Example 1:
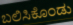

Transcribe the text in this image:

ಬಲಿಸಿಕೊಂಡು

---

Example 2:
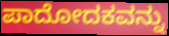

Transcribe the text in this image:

ಪಾದೋದಕವನ್ನು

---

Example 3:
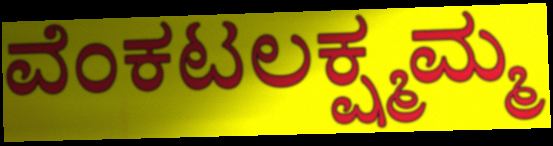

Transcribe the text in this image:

ವೆಂಕಟಲಕ್ಷ್ಮಮ್ಮ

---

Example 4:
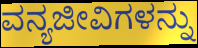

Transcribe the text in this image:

ವನ್ಯಜೀವಿಗಳನ್ನು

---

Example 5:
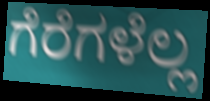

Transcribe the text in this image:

ಗೆರೆಗಳೆಲ್ಲ